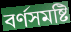
বৰ্ণসমষ্টি